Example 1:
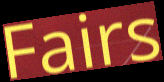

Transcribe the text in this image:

Fairs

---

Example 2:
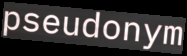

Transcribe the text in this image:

pseudonym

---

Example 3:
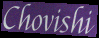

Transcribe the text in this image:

Chovishi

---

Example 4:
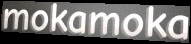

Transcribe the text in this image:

mokamoka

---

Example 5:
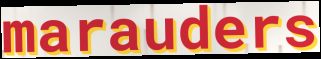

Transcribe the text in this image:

marauders